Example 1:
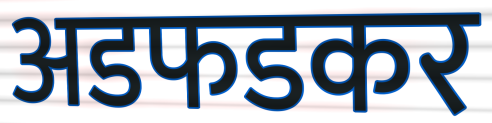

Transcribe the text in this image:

अडफडकर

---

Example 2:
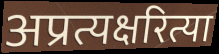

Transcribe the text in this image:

अप्रत्यक्षरित्या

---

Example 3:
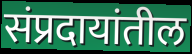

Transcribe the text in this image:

संप्रदायांतील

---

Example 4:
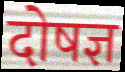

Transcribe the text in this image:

दोषज्ञ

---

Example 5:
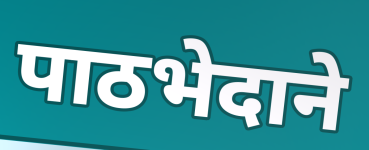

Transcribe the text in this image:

पाठभेदाने